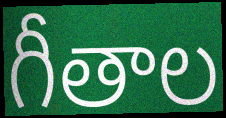
గీతాల